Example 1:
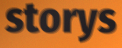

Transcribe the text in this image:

storys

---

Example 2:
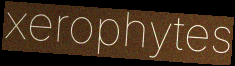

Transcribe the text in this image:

xerophytes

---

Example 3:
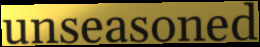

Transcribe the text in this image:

unseasoned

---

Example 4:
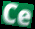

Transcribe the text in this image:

Ce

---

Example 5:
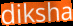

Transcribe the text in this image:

diksha